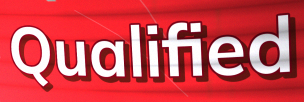
Qualified